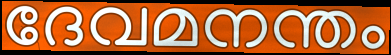
ദേവമനന്തം